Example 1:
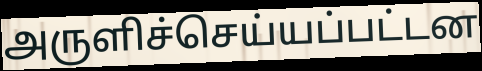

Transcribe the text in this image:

அருளிச்செய்யப்பட்டன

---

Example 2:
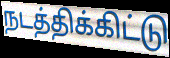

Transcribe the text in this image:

நடத்திக்கிட்டு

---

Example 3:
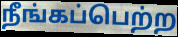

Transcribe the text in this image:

நீங்கப்பெற்ற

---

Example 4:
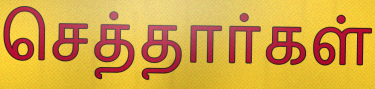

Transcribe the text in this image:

செத்தார்கள்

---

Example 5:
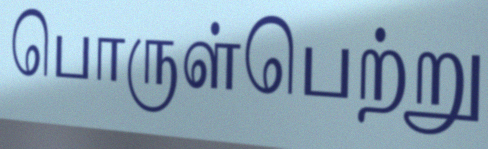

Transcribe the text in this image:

பொருள்பெற்று